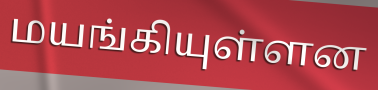
மயங்கியுள்ளன